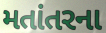
મતાંતરના